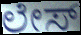
ಲೇಸ್